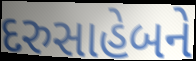
દરુસાહેબને